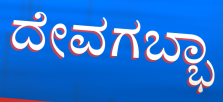
ದೇವಗಬ್ಭಾ